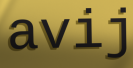
avij